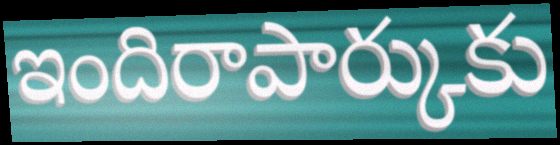
ఇందిరాపార్కుకు